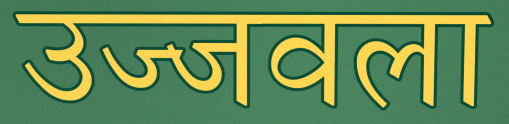
उज्‍जवला